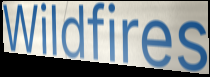
Wildfires